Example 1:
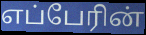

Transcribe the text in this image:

எப்பேரின்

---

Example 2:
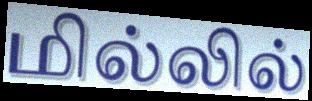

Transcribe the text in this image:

மில்லில்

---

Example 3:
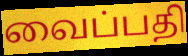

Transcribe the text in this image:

வைப்பதி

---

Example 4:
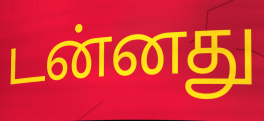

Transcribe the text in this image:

டன்னது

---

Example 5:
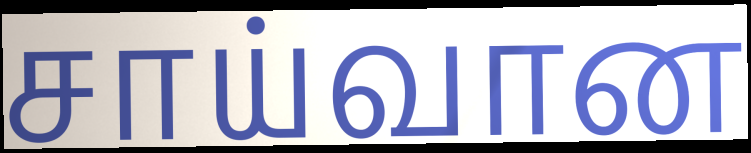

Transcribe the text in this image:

சாய்வான